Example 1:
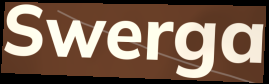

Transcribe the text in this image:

Swerga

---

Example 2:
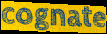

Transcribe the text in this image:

cognate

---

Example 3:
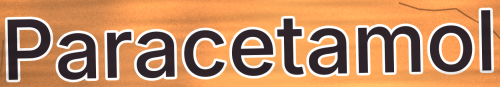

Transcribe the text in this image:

Paracetamol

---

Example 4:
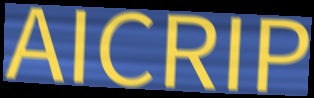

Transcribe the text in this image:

AICRIP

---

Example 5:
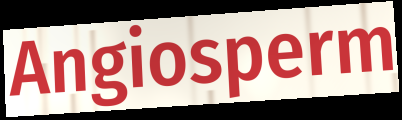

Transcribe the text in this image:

Angiosperm